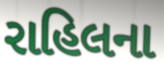
રાહિલના